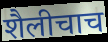
शैलीचाच